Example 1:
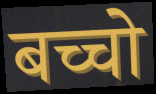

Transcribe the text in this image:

बच्चो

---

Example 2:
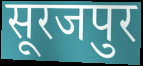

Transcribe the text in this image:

सूरजपुर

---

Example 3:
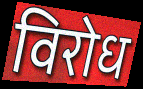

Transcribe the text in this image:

विरोध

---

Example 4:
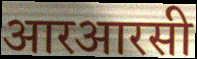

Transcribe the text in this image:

आरआरसी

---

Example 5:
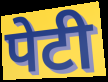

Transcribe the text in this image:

पेटी